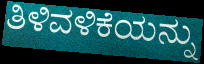
ತಿಳಿವಳಿಕೆಯನ್ನು